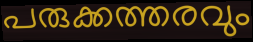
പരുക്കത്തരവും